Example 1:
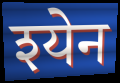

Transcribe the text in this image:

श्येन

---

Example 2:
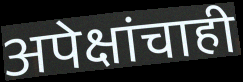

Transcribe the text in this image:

अपेक्षांचाही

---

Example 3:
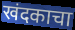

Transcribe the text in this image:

खंदकाचा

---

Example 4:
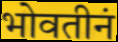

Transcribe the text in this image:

भोवतीनं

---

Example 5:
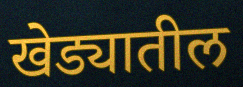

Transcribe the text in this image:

खेड्यातील